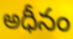
అధీనం